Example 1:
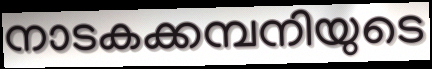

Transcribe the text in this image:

നാടകക്കമ്പനിയുടെ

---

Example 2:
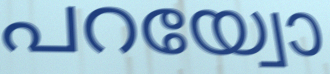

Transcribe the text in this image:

പറയ്വോ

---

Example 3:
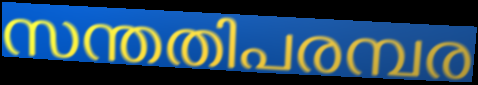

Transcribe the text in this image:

സന്തതിപരമ്പര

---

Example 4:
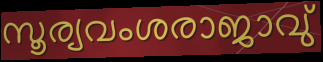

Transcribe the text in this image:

സൂര്യവംശരാജാവു്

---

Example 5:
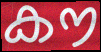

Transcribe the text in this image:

കൗ